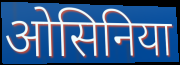
ओसिनिया